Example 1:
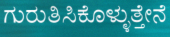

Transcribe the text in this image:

ಗುರುತಿಸಿಕೊಳ್ಳುತ್ತೇನೆ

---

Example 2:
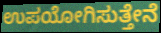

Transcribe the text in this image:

ಉಪಯೋಗಿಸುತ್ತೇನೆ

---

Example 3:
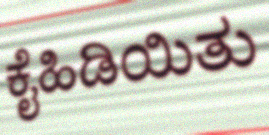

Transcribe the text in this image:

ಕೈಹಿಡಿಯಿತು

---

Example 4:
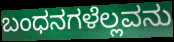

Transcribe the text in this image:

ಬಂಧನಗಳೆಲ್ಲವನು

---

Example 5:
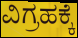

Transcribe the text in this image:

ವಿಗ್ರಹಕ್ಕೆ